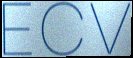
ECV